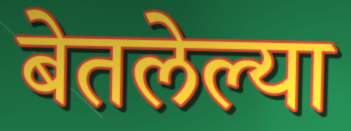
बेतलेल्या